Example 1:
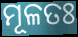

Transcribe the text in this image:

ମୂଳତଃ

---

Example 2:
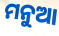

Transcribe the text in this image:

ମନୁଆ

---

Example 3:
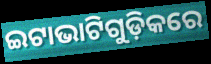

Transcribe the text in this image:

ଇଟାଭାଟିଗୁଡ଼ିକରେ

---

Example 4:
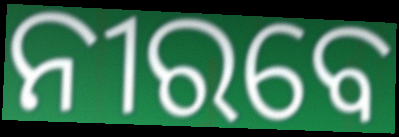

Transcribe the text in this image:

ନୀରବେ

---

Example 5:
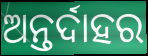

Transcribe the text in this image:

ଅନ୍ତର୍ଦାହର